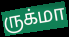
ருக்மா